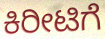
ಕಿರೀಟಿಗೆ